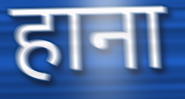
हाना